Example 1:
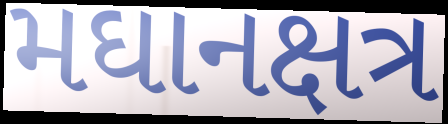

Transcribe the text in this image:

મઘાનક્ષત્ર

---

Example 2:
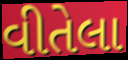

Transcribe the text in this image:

વીતેલા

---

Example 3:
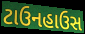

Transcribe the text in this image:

ટાઉનહાઉસ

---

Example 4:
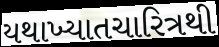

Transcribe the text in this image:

યથાખ્યાતચારિત્રથી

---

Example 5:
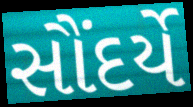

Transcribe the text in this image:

સૌંદર્યે